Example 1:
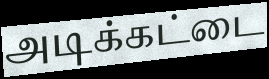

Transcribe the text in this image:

அடிக்கட்டை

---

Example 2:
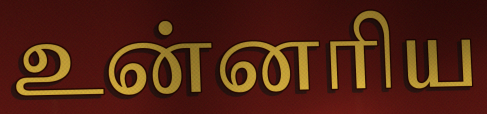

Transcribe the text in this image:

உன்னரிய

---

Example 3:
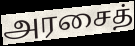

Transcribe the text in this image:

அரசைத்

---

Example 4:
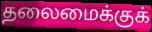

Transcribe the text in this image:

தலைமைக்குக்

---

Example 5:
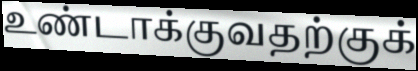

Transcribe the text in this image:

உண்டாக்குவதற்குக்